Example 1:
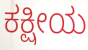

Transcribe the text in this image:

ಕಕ್ಷೀಯ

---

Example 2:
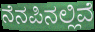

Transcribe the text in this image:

ನೆನಪಿನಲ್ಲಿವೆ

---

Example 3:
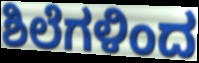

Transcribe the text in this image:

ಶಿಲೆಗಳಿಂದ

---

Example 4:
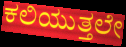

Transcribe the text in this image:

ಕಲಿಯುತ್ತಲೇ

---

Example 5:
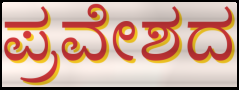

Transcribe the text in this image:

ಪ್ರವೇಶದ